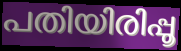
പതിയിരിപ്പൂ